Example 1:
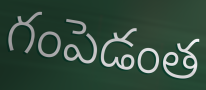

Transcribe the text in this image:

గంపెడంత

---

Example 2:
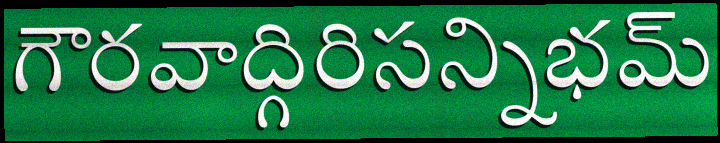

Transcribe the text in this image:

గౌరవాద్గిరిసన్నిభమ్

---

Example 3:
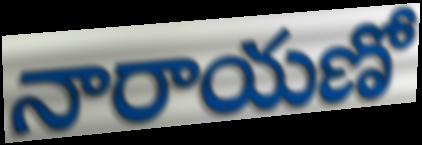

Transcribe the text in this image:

నారాయణో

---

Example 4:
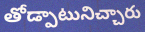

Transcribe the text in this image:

తోడ్పాటునిచ్చారు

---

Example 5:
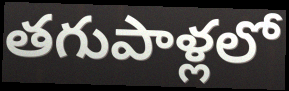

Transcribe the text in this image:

తగుపాళ్లలో